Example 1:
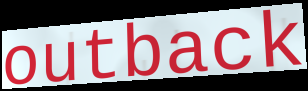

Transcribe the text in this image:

outback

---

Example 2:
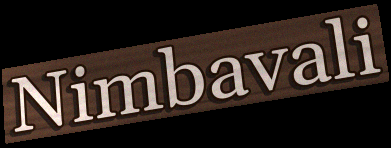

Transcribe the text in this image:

Nimbavali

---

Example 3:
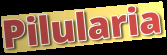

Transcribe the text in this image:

Pilularia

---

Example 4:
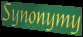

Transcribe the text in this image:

Synonymy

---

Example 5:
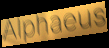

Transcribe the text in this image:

Alphaeus